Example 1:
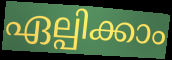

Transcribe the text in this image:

ഏല്പിക്കാം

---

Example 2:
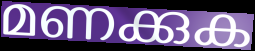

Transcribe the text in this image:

മണക്കുക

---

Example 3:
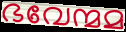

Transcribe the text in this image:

ഭവേന്മമ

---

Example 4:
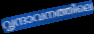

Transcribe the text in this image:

വൃന്ദാവനത്തിലെ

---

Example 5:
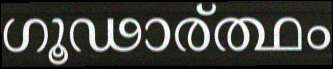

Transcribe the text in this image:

ഗൂഢാര്ത്ഥം